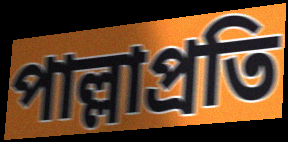
পাল্লাপ্রতি